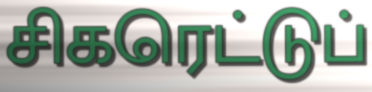
சிகரெட்டுப்